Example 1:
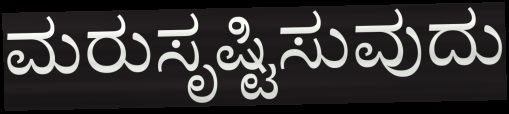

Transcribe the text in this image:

ಮರುಸೃಷ್ಟಿಸುವುದು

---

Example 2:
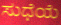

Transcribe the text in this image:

ಸುಧೆಯೆ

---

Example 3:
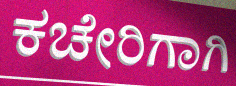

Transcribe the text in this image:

ಕಚೇರಿಗಾಗಿ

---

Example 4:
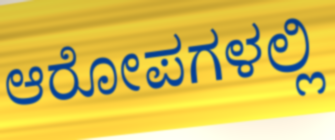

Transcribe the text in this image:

ಆರೋಪಗಳಲ್ಲಿ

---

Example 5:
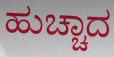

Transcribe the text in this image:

ಹುಚ್ಚಾದ